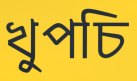
খুপচি